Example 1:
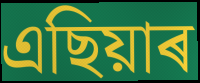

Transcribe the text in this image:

এছিয়াৰ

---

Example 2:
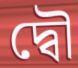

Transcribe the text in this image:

দ্বৌ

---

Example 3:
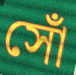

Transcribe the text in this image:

সোঁ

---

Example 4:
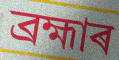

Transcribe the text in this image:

ব্ৰহ্মাৰ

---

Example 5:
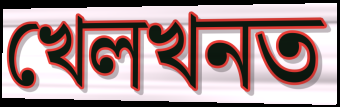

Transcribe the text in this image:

খেলখনত